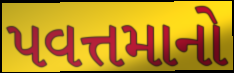
પવત્તમાનો